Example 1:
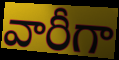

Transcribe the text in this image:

వారీగా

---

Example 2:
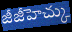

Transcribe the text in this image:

జీజీహెచ్కు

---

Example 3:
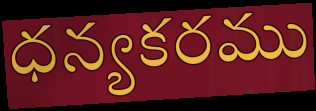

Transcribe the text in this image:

ధన్యకరము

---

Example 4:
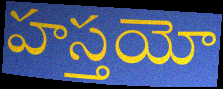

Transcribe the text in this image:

హస్తయో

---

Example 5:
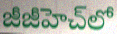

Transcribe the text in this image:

జీజీహెచ్‌లో